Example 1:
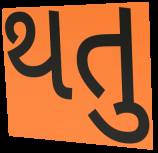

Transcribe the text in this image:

થતુ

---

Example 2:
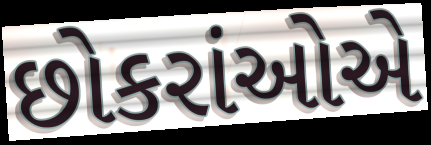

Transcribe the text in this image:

છોકરાંઓએ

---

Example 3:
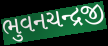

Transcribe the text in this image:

ભુવનચન્દ્રજી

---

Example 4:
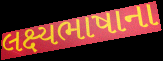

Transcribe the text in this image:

લક્ષ્યભાષાના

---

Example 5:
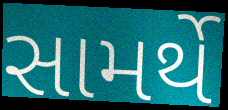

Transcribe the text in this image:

સામર્થે